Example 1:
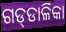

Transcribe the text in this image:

ଗଡ୍‍ଡାଳିକା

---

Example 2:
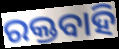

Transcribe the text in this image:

ରକ୍ତବାହି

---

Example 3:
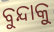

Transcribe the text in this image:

ବୁନ୍ଦାକୁ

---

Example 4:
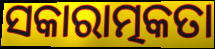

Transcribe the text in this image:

ସକାରାତ୍ମକତା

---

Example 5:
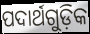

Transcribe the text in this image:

ପଦାର୍ଥଗୁଡ଼ିକ